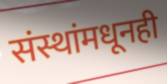
संस्थांमधूनही